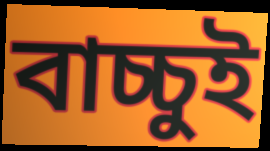
বাচ্চুই